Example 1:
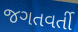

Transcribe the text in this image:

જગતવર્તી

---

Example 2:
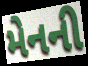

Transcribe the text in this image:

મેનની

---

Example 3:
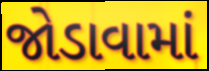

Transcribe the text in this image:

જોડાવામાં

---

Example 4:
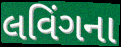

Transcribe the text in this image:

લવિંગના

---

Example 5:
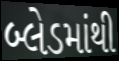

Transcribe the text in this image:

બ્લેડમાંથી